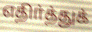
எதிர்த்துக்